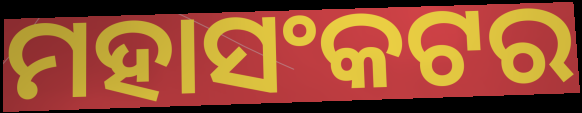
ମହାସଂକଟର